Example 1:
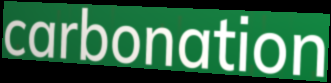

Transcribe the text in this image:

carbonation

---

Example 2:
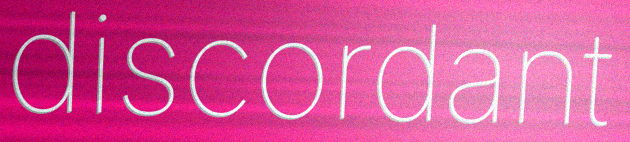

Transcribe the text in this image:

discordant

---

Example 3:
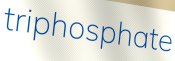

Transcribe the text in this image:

triphosphate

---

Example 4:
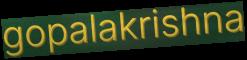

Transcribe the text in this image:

gopalakrishna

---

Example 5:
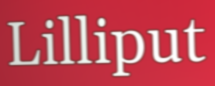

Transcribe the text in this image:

Lilliput